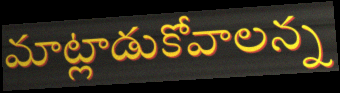
మాట్లాడుకోవాలన్న